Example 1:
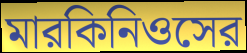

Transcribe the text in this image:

মারকিনিওসের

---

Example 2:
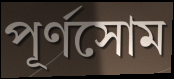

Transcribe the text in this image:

পূর্ণসোম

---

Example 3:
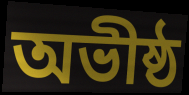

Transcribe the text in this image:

অভীষ্ঠ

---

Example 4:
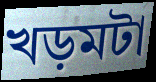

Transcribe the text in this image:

খড়মটা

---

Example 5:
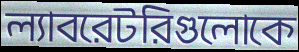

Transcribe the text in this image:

ল্যাবরেটরিগুলোকে